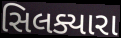
સિલક્યારા